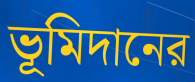
ভূমিদানের